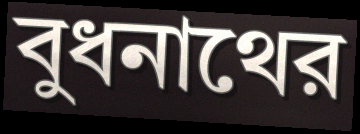
বুধনাথের